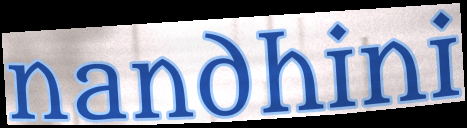
nandhini